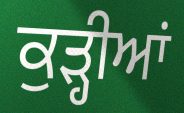
ਕੁੜ੍ਹੀਆਂ